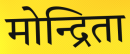
मोन्द्रिता